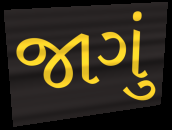
જાગું